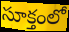
సూక్తంలో